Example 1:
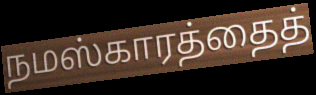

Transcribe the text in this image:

நமஸ்காரத்தைத்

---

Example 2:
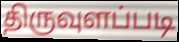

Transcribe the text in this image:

திருவுளப்படி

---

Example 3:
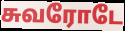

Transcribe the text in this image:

சுவரோடே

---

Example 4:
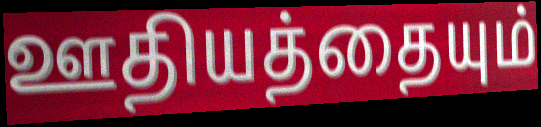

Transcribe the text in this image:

ஊதியத்தையும்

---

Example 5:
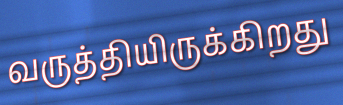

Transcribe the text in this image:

வருத்தியிருக்கிறது